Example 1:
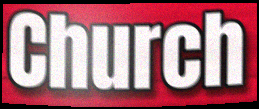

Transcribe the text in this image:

Church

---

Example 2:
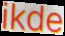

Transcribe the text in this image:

ikde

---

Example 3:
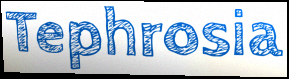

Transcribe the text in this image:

Tephrosia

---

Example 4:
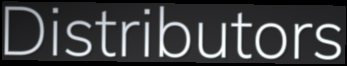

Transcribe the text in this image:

Distributors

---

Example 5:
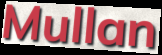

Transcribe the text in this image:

Mullan